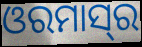
ଓରମାସ୍‌ର